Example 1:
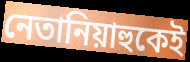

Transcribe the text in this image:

নেতানিয়াহুকেই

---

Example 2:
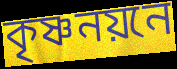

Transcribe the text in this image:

কৃষ্ণনয়নে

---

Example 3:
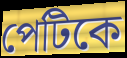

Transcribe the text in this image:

পেটিকে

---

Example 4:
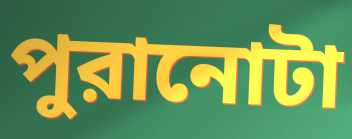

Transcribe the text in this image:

পুরানোটা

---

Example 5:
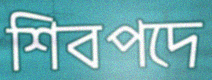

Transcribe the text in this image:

শিবপদে